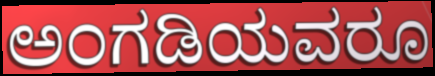
ಅಂಗಡಿಯವರೂ